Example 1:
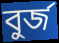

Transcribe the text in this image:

বুর্জ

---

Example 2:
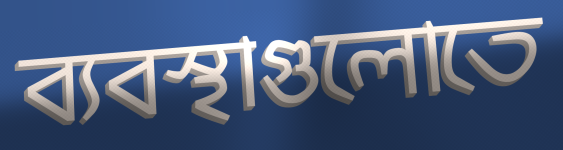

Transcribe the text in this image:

ব্যবস্থাগুলোতে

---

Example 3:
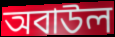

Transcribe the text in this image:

অবাউল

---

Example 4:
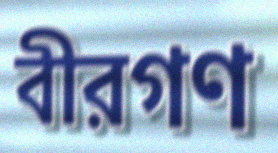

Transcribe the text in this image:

বীরগণ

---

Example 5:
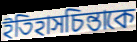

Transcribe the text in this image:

ইতিহাসচিন্তাকে